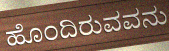
ಹೊಂದಿರುವವನು